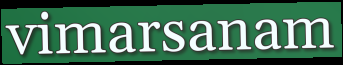
vimarsanam